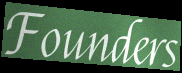
Founders